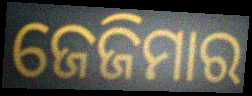
ଜେଜିମାର